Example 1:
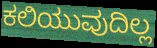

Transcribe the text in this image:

ಕಲಿಯುವುದಿಲ್ಲ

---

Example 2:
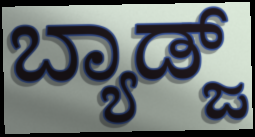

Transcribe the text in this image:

ಬ್ಯಾಡ್ಜ್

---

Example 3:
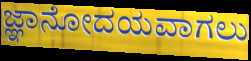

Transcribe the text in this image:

ಜ್ಞಾನೋದಯವಾಗಲು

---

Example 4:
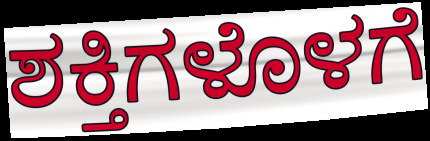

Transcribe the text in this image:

ಶಕ್ತಿಗಳೊಳಗೆ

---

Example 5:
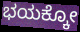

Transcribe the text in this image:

ಭಯಕ್ಕೋ